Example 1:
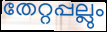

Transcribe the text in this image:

തേറ്റപ്പല്ലും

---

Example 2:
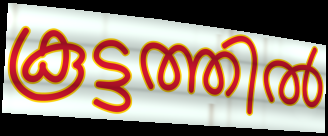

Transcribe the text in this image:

കൂട്ടത്തിൽ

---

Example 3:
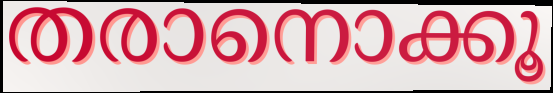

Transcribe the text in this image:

തരാനൊക്കൂ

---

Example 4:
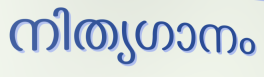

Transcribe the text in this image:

നിത്യഗാനം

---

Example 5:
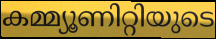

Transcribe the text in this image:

കമ്മ്യൂണിറ്റിയുടെ